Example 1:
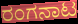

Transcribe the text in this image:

ರಂಗನಾಟ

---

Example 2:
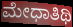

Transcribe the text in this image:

ಮೇಧಾತಿಥಿ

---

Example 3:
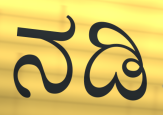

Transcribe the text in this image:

ನಡಿ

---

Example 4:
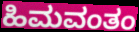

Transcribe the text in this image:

ಹಿಮವಂತಂ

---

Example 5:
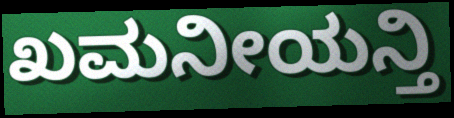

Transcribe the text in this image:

ಖಮನೀಯನ್ತಿ